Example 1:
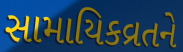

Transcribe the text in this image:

સામાયિકવ્રતને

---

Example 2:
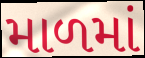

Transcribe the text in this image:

માળમાં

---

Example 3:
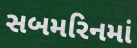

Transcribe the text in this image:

સબમરિનમાં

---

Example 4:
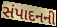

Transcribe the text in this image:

સંપાદનની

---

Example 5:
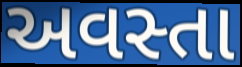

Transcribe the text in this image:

અવસ્તા